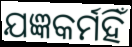
ଯଜ୍ଞକର୍ମହିଁ